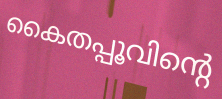
കൈതപ്പൂവിന്റെ